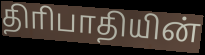
திரிபாதியின்